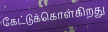
கேட்டுக்கொள்கிறது